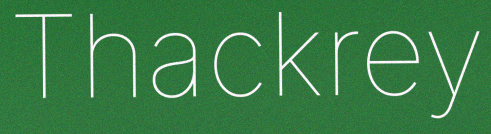
Thackrey